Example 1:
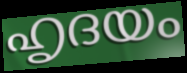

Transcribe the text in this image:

ഹൃദയം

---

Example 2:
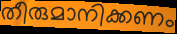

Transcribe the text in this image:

തീരുമാനിക്കണം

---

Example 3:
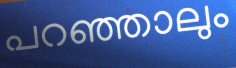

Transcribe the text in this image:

പറഞ്ഞാലും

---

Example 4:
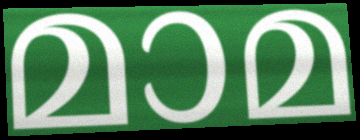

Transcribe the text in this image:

മാമ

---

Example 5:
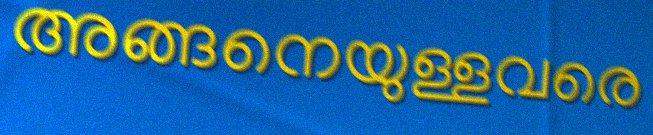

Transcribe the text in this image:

അങ്ങനെയുള്ളവരെ